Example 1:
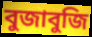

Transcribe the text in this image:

বুজাবুজি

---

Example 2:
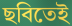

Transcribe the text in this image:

ছবিতেই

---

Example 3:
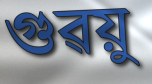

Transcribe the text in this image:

গুৱয়ু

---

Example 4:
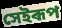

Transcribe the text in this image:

সেইৰূপ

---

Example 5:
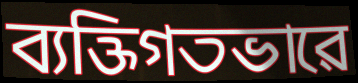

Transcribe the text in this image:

ব্যক্তিগতভাৱে